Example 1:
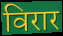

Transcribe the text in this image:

विरार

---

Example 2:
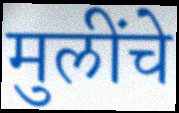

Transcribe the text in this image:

मुलींचे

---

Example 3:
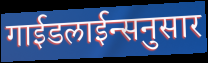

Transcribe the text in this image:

गाईडलाईन्सनुसार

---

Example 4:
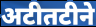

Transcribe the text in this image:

अटीतटीने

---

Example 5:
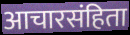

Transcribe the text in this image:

आचारसंहिता